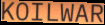
KOILWAR